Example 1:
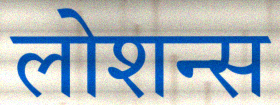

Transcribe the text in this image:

लोशन्स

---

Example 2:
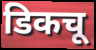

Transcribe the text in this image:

डिकचू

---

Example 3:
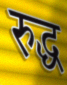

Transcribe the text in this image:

रुद्ध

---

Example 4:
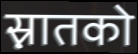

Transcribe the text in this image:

स्नातको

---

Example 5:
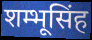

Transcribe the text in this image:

शम्भूसिंह